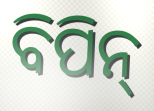
ବିପିନ୍